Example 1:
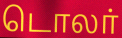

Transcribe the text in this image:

டொலர்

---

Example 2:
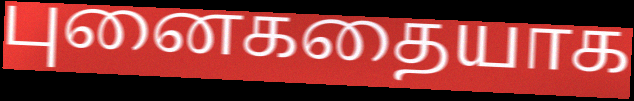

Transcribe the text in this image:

புனைகதையாக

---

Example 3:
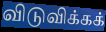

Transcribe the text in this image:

விடுவிக்கக்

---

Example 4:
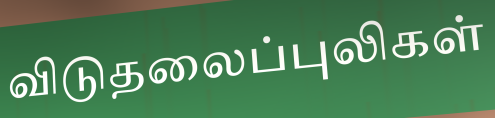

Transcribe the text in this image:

விடுதலைப்புலிகள்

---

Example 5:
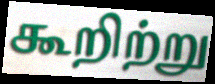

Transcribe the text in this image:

கூறிற்று